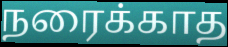
நரைக்காத